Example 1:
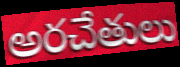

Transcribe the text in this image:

అరచేతులు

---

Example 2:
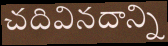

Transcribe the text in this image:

చదివినదాన్ని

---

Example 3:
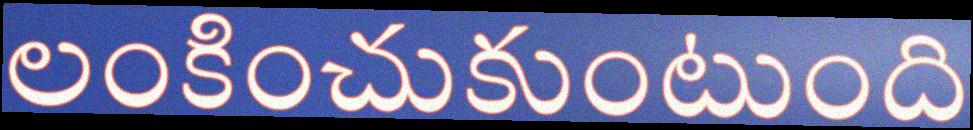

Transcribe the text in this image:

లంకించుకుంటుంది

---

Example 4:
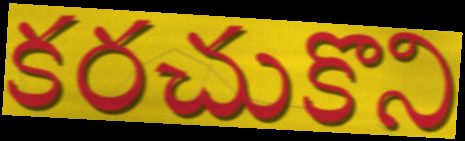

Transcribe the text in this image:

కరచుకొని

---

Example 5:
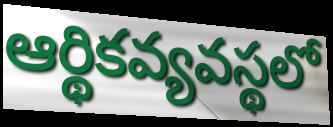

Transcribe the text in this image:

ఆర్థికవ్యవస్థలో